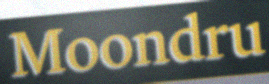
Moondru